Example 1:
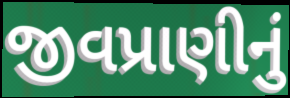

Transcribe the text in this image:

જીવપ્રાણીનું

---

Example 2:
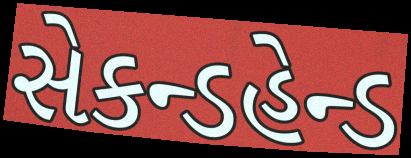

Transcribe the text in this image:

સેકન્ડહેન્ડ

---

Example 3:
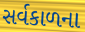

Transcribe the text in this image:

સર્વકાળના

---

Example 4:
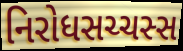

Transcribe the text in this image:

નિરોધસચ્ચસ્સ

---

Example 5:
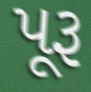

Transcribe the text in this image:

પૂરૂ